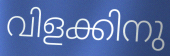
വിളക്കിനു